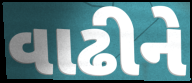
વાઢીને